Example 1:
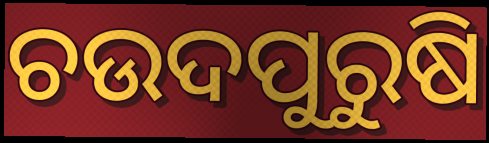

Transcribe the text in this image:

ଚଉଦପୁରୁଷି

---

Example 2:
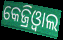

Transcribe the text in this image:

କେଜ୍ରିଓ୍ଵାଲ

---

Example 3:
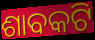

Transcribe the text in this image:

ଶାବକଟି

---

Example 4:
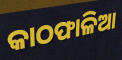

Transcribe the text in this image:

କାଠଫାଳିଆ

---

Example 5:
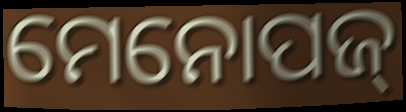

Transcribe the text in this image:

ମେନୋପଜ୍